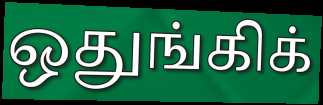
ஒதுங்கிக்